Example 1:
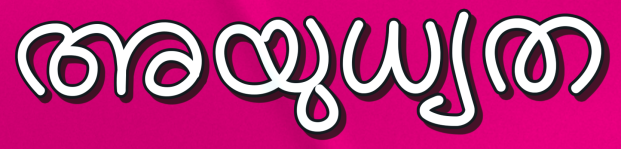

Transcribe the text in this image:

അയുധ്യത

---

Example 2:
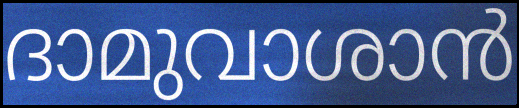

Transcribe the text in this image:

ദാമുവാശാൻ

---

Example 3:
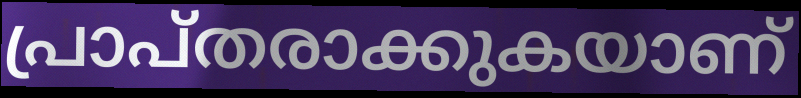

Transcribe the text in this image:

പ്രാപ്തരാക്കുകയാണ്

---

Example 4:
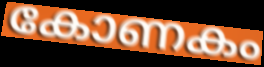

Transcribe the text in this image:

കോണകം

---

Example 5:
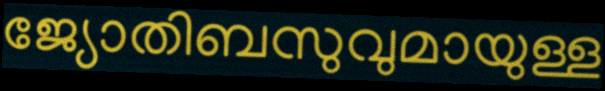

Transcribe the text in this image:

ജ്യോതിബസുവുമായുള്ള